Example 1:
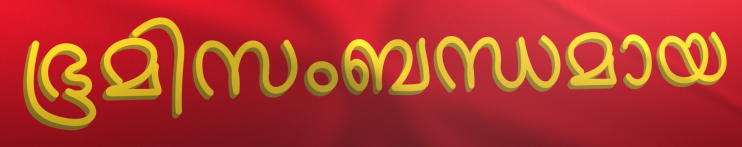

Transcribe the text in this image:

ഭൂമിസംബന്ധമായ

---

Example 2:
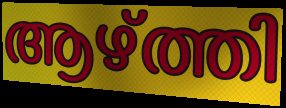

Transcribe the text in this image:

ആഴ്ത്തി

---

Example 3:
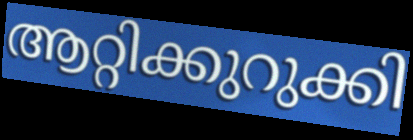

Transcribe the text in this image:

ആറ്റിക്കുറുക്കി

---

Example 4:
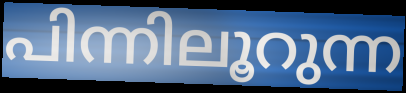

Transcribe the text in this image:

പിന്നിലൂറുന്ന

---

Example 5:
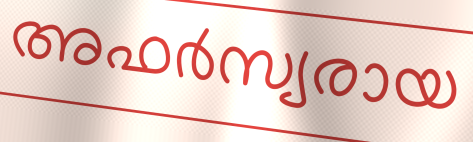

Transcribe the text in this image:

അഫർസ്യരായ